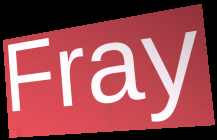
Fray